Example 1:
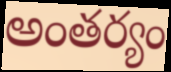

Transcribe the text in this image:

అంతర్యం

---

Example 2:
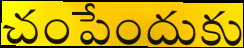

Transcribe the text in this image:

చంపేందుకు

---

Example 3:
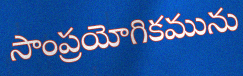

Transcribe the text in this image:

సాంప్రయోగికమును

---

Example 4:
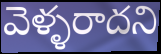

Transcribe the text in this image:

వెళ్ళరాదని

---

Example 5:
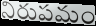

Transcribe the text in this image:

నిరుపమం